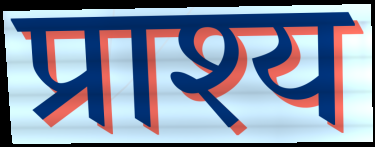
प्राश्य